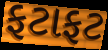
ફટાફટ